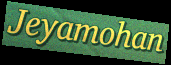
Jeyamohan